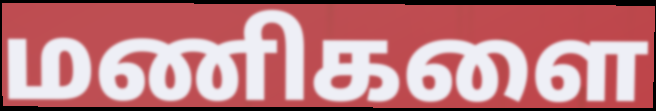
மணிகளை